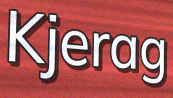
Kjerag